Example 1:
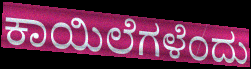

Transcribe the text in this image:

ಕಾಯಿಲೆಗಳೆಂದು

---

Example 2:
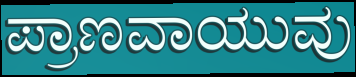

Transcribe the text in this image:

ಪ್ರಾಣವಾಯುವು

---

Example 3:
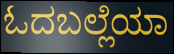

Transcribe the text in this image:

ಓದಬಲ್ಲೆಯಾ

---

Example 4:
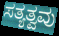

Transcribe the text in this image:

ಸತ್ಯತ್ವವು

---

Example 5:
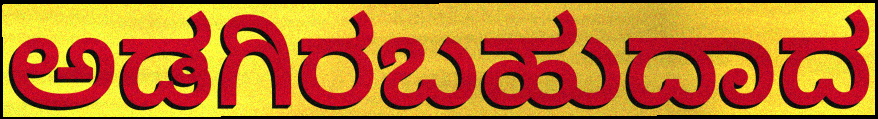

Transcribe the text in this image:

ಅಡಗಿರಬಹುದಾದ